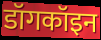
डॉगकॉइन